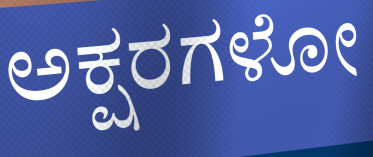
ಅಕ್ಷರಗಳೋ